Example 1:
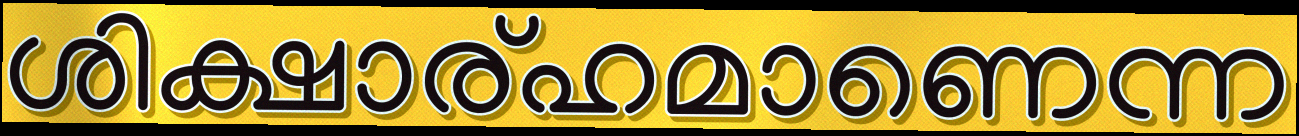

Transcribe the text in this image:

ശിക്ഷാര്ഹമാണെന്ന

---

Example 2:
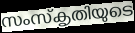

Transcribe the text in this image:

സംസ്‌കൃതിയുടെ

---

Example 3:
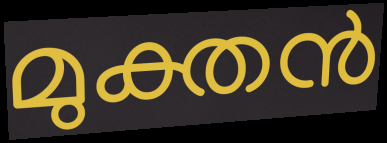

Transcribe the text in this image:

മുക്തൻ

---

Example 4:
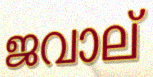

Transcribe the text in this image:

ജവാല്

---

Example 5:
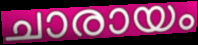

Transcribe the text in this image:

ചാരായം